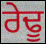
ਰੇਢੂ